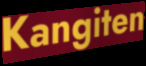
Kangiten